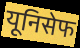
यूनिसेफ